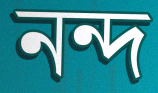
নন্দ